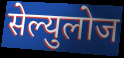
सेल्युलोज